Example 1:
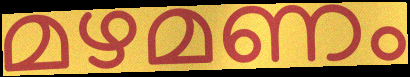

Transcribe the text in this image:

മഴമണം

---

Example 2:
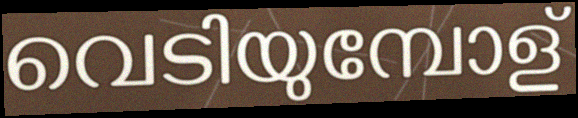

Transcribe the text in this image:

വെടിയുമ്പോള്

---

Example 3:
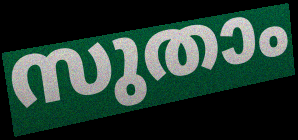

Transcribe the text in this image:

സുതാം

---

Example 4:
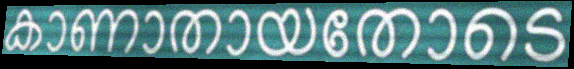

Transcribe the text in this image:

കാണാതായതോടെ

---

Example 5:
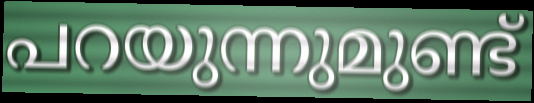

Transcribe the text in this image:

പറയുന്നുമുണ്ട്